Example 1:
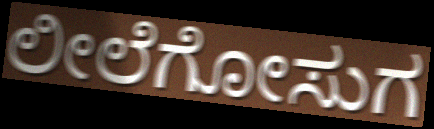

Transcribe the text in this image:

ಲೀಲೆಗೋಸುಗ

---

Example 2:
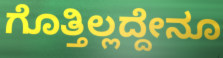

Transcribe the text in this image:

ಗೊತ್ತಿಲ್ಲದ್ದೇನೂ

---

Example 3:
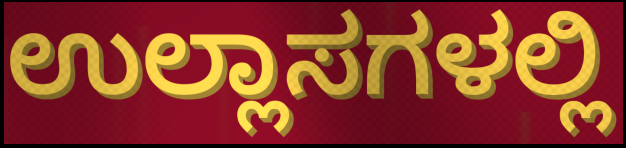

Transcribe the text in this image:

ಉಲ್ಲಾಸಗಳಲ್ಲಿ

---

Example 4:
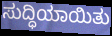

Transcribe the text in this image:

ಸುದ್ಧಿಯಾಯಿತು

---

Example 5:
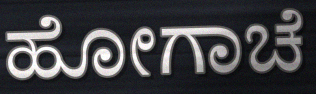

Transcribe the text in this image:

ಹೋಗಾಚೆ